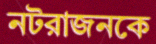
নটরাজনকে